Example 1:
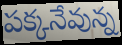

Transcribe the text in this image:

పక్కనేవున్న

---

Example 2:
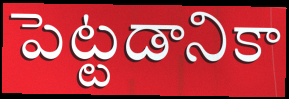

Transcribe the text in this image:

పెట్టడానికా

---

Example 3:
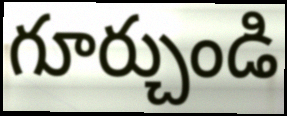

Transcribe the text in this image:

గూర్చుండి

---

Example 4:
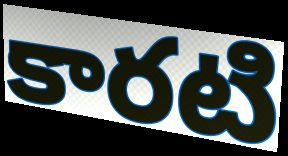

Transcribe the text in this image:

కారటి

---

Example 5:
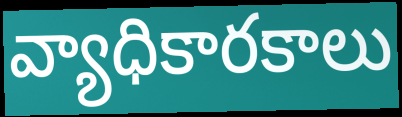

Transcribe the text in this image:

వ్యాధికారకాలు